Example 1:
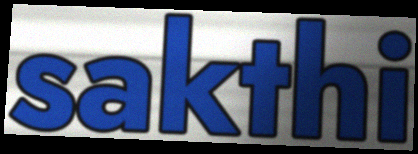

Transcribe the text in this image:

sakthi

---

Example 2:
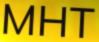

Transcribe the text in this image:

MHT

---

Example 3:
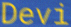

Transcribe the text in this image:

Devi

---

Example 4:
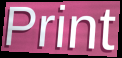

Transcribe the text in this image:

Print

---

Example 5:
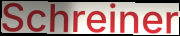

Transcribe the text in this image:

Schreiner